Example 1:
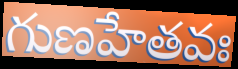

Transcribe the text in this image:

గుణహేతవః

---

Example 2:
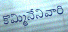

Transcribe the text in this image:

కొమ్మినేనివారి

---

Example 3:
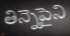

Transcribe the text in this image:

తిన్నెపైని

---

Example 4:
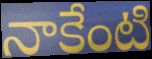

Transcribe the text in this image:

నాకేంటి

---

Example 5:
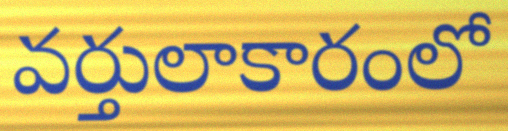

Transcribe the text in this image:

వర్తులాకారంలో